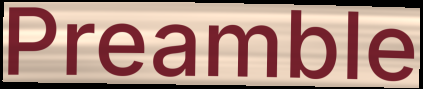
Preamble